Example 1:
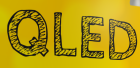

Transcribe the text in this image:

QLED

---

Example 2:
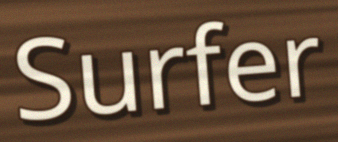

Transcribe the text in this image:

Surfer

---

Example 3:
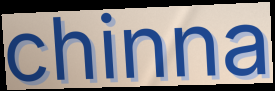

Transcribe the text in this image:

chinna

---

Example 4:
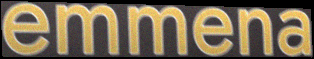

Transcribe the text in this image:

emmena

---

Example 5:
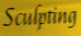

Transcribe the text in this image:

Sculpting